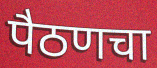
पैठणचा